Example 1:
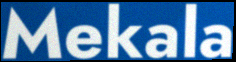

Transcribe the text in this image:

Mekala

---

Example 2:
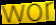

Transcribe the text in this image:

wor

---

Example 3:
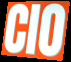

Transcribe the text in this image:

CIO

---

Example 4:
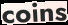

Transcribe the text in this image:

coins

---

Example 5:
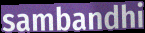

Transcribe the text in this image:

sambandhi